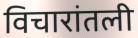
विचारांतली